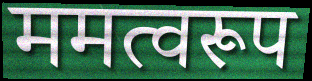
ममत्वरूप